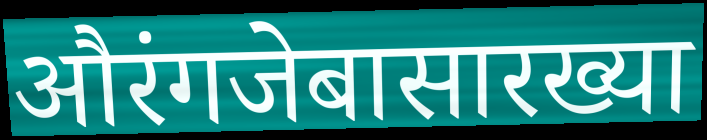
औरंगजेबासारख्या